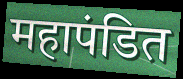
महापंडित